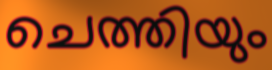
ചെത്തിയും